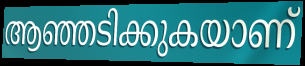
ആഞ്ഞടിക്കുകയാണ്